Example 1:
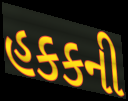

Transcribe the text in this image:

હકકની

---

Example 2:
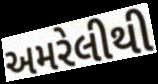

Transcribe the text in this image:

અમરેલીથી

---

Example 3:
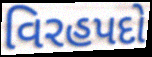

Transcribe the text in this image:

વિરહપદો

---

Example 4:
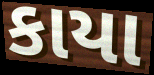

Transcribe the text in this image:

કાયા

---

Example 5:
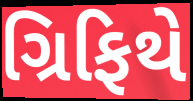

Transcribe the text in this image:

ગ્રિફિથે